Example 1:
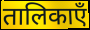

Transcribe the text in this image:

तालिकाएँ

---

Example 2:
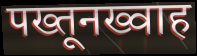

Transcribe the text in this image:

पख्तूनख्वाह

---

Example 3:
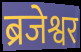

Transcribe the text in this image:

ब्रजेश्वर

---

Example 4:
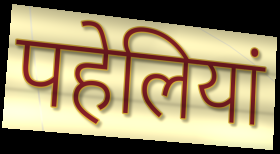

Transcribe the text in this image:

पहेलियां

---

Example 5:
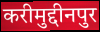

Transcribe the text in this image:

करीमुद्दीनपुर